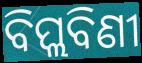
ବିପ୍ଲବିଣୀ